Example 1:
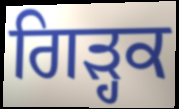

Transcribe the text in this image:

ਗਿੜ੍ਹਕ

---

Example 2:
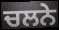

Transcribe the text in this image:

ਚਲਨੇ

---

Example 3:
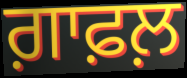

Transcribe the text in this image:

ਗ਼ਾਫ਼ਲ਼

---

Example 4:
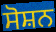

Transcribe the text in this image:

ਸੋਸ਼ਨ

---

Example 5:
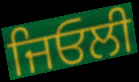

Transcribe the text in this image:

ਜਿਓਲੀ